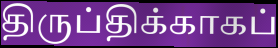
திருப்திக்காகப்